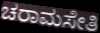
ಚರಾಮಸೇತಿ